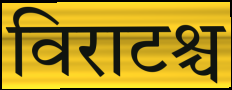
विराटश्च